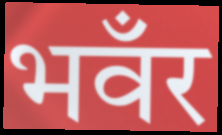
भवँर